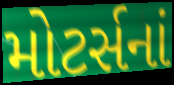
મોટર્સનાં